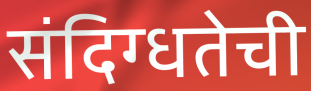
संदिग्धतेची